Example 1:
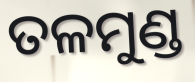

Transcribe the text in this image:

ତଳମୁଣ୍ଡ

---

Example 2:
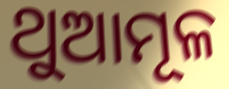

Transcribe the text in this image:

ଥୁଆମୂଳ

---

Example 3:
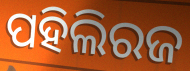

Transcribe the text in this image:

ପହିଲିରଜ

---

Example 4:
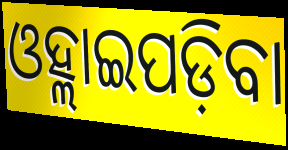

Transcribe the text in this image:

ଓହ୍ଲାଇପଡ଼ିବା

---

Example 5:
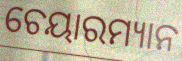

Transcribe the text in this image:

ଚେୟାରମ୍ୟାନ